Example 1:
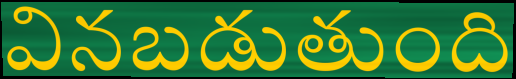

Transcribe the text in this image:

వినబడుతుంది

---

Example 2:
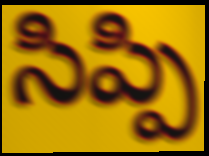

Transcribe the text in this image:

సిప్పి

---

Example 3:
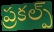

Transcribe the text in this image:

ప్రకల్ప్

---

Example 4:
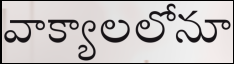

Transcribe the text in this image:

వాక్యాలలోనూ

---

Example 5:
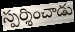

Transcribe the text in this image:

స్పర్శించాడు